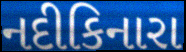
નદીકિનારા